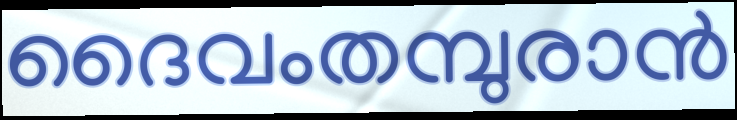
ദൈവംതമ്പുരാൻ